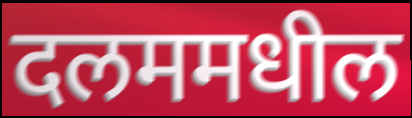
दलममधील